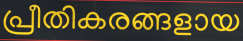
പ്രീതികരങ്ങളായ